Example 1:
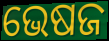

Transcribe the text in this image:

ଭେଷଜ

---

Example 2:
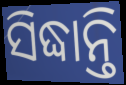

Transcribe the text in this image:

ସିଦ୍ଧାନ୍ତି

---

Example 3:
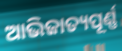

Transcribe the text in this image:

ଆଭିଜାତ୍ୟପୂର୍ଣ୍ଣ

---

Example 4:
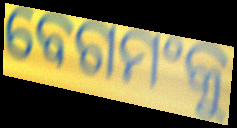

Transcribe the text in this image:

ବେଗମଂକୁ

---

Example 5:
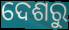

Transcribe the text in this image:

ଦେଶରୁ